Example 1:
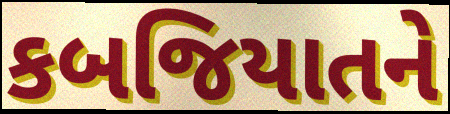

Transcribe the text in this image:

કબજિયાતને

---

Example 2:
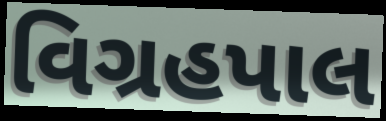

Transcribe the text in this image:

વિગ્રહપાલ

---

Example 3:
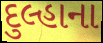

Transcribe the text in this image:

દુલ્હાના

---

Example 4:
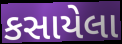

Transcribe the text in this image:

કસાયેલા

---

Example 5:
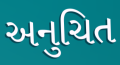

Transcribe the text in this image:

અનુચિત